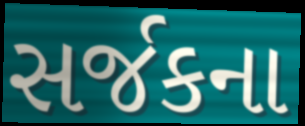
સર્જકના